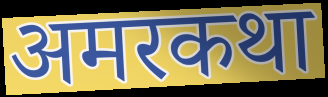
अमरकथा